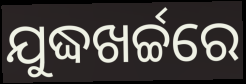
ଯୁଦ୍ଧଖର୍ଚ୍ଚରେ